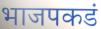
भाजपकडं